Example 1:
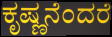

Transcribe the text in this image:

ಕೃಷ್ಣನೆಂದರೆ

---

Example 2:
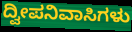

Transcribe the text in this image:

ದ್ವೀಪನಿವಾಸಿಗಳು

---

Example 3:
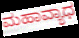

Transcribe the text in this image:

ಮಹಾವ್ಯಾಧ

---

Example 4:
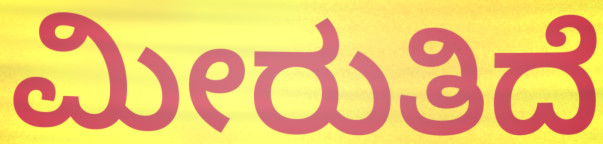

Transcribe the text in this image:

ಮೀರುತಿದೆ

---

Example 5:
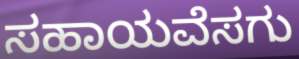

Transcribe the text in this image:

ಸಹಾಯವೆಸಗು